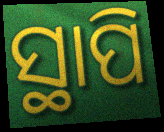
ସ୍ଥାପି